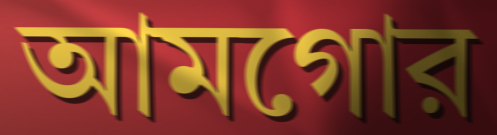
আমগোর